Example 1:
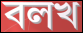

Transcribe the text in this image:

বলখ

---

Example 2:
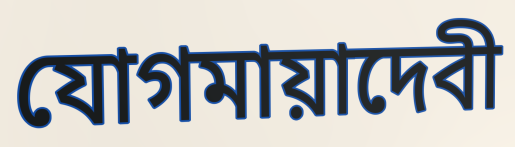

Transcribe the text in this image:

যোগমায়াদেবী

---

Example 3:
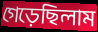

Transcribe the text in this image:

গেড়েছিলাম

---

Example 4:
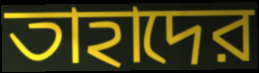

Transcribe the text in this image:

তাহাদের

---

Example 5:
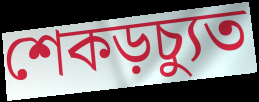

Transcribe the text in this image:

শেকড়চ্যুত